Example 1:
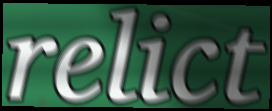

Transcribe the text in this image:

relict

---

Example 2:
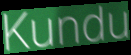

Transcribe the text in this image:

Kundu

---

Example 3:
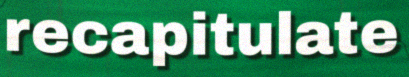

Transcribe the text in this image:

recapitulate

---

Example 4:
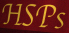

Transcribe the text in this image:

HSPs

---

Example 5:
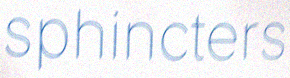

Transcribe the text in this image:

sphincters